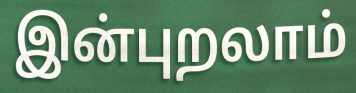
இன்புறலாம்